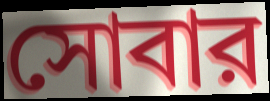
সোবার